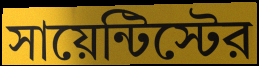
সায়েন্টিস্টের